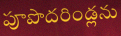
పూపొదరిండ్లను